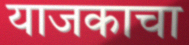
याजकाचा